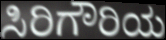
ಸಿರಿಗೌರಿಯ